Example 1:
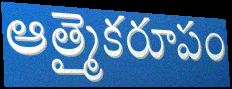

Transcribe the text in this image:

ఆత్మైకరూపం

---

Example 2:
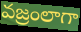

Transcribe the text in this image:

వజ్రంలాగా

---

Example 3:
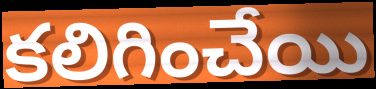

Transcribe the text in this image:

కలిగించేయి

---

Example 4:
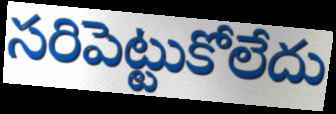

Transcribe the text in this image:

సరిపెట్టుకోలేదు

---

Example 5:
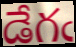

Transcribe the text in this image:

డేగఁ